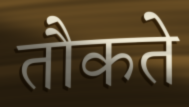
तौकते